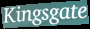
Kingsgate